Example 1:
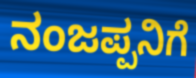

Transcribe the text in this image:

ನಂಜಪ್ಪನಿಗೆ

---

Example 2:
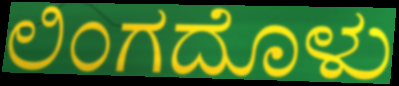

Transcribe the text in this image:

ಲಿಂಗದೊಳು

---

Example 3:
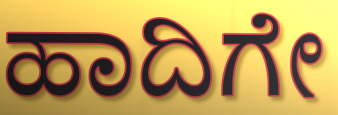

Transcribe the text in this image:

ಹಾದಿಗೇ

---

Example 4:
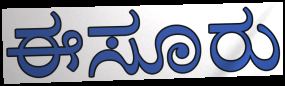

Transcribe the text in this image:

ಈಸೂರು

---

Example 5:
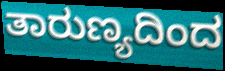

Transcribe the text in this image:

ತಾರುಣ್ಯದಿಂದ